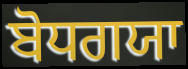
ਬੋਧਗਯਾ